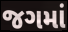
જગમાં